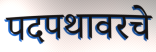
पदपथावरचे